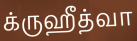
க்ருஹீத்வா